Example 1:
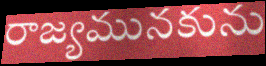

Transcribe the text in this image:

రాజ్యమునకును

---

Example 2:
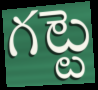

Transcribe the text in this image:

గట్టె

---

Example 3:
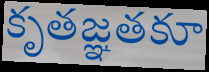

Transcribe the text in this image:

కృతజ్ఞతకూ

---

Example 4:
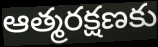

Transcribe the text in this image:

ఆత్మరక్షణకు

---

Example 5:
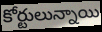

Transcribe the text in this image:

కోర్టులున్నాయి